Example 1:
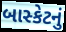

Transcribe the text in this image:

બાસ્કેટનું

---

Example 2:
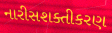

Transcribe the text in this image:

નારીસશક્તીકરણ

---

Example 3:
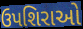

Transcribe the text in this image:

ઉપશિરાઓ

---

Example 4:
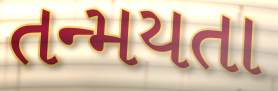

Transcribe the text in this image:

તન્મયતા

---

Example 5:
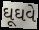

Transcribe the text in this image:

ઘૂઘવે